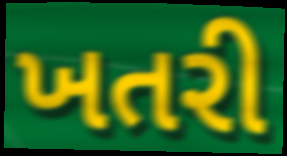
ખતરી